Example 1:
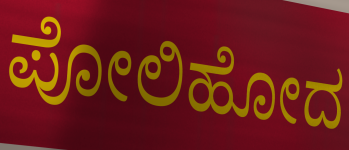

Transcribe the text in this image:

ಪೋಲಿಹೋದ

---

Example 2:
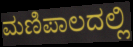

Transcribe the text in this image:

ಮಣಿಪಾಲದಲ್ಲಿ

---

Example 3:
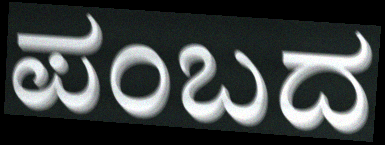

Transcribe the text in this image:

ಪಂಬದ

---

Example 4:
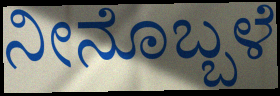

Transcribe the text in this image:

ನೀನೊಬ್ಬಳೆ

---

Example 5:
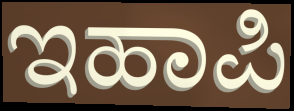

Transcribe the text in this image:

ಇಹಾಪಿ